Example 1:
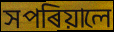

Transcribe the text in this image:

সপৰিয়ালে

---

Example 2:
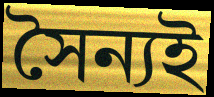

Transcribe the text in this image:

সৈন্যই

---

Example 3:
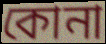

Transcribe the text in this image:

কোনা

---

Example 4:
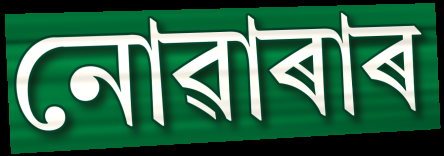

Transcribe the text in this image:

নোৱাৰাৰ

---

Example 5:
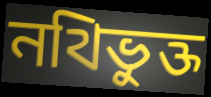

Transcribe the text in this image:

নথিভুক্ত